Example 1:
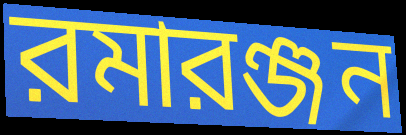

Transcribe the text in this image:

রমারঞ্জন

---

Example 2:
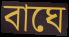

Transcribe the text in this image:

বাঘে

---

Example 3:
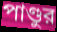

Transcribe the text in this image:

পাণ্ডুর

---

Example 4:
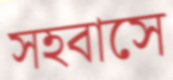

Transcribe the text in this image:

সহবাসে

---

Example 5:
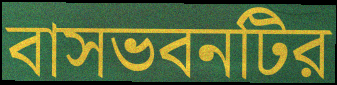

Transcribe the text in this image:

বাসভবনটির